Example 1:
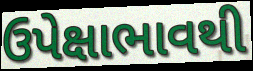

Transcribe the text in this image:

ઉપેક્ષાભાવથી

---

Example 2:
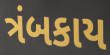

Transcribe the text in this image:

ત્રંબકાય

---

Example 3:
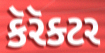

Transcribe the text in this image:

કૅરૅક્ટર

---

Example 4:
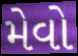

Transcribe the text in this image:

મેવો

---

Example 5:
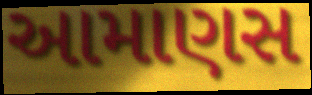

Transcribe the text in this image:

આમાણસ